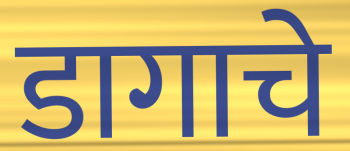
डागाचे